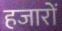
हजारों